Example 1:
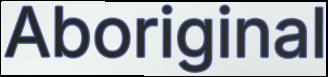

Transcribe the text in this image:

Aboriginal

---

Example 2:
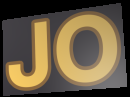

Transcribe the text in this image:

JO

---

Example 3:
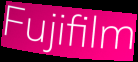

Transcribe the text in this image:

Fujifilm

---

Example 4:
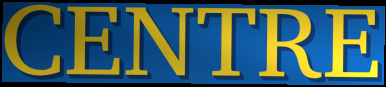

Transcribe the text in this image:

CENTRE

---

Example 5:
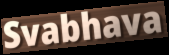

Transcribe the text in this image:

Svabhava